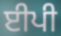
ਈਪੀ